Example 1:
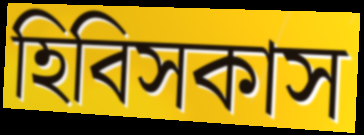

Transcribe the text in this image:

হিবিসকাস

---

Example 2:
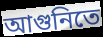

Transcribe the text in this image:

আগুনিতে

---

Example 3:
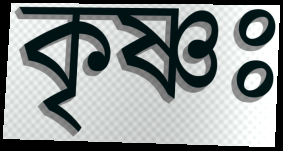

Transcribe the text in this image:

কৃষ্ণঃ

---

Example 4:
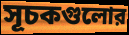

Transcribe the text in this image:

সূচকগুলোর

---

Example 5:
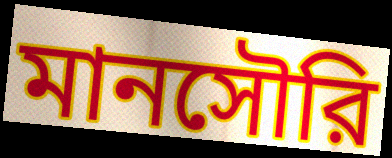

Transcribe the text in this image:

মানসৌরি